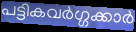
പട്ടികവർഗ്ഗക്കാർ